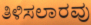
ತಿಳಿಸಲಾರವು